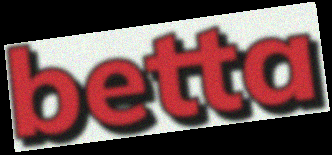
betta